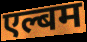
एल्बम